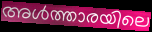
അൾത്താരയിലെ